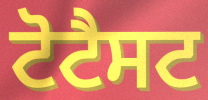
ਟੋਟੈਸਟ